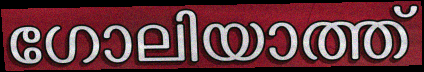
ഗോലിയാത്ത്